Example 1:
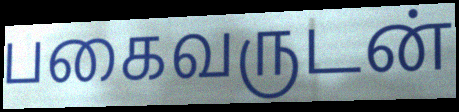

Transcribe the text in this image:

பகைவருடன்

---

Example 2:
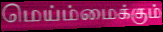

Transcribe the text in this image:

மெய்ம்மைக்கும்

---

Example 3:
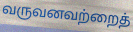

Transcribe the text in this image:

வருவனவற்றைத்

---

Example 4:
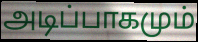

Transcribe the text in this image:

அடிப்பாகமும்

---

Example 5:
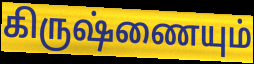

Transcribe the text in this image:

கிருஷ்ணையும்